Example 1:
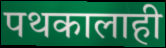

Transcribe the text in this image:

पथकालाही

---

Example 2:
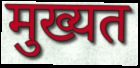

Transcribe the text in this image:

मुख्यत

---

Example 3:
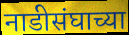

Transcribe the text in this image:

नाडीसंघाच्या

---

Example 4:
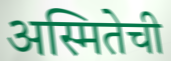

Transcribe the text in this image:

अस्मितेची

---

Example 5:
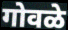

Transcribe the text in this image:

गोवळे